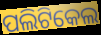
ପଲିଟିକେଲ